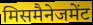
मिसमैनेजमेंट